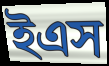
ইএস